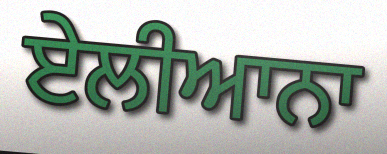
ਏਲੀਆਨਾ